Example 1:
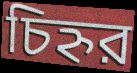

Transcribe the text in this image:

চিহ্নর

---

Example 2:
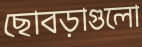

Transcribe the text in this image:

ছোবড়াগুলো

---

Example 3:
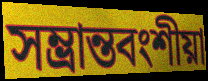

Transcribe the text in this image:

সম্ভ্রান্তবংশীয়া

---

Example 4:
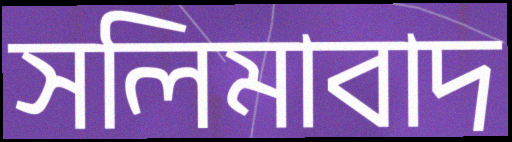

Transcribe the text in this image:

সলিমাবাদ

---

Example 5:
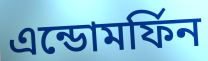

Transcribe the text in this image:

এন্ডোমর্ফিন